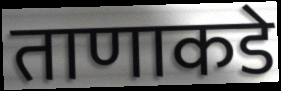
ताणाकडे